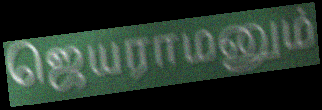
ஜெயராமனும்